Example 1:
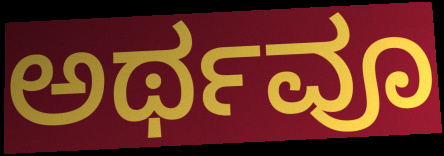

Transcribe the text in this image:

ಅರ್ಥವೂ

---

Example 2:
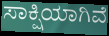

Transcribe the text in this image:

ಸಾಕ್ಷಿಯಾಗಿವೆ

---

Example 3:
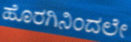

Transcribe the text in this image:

ಹೊರಗಿನಿಂದಲೇ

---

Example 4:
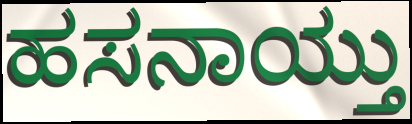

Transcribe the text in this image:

ಹಸನಾಯ್ತು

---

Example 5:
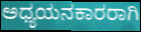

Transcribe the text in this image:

ಅಧ್ಯಯನಕಾರರಾಗಿ